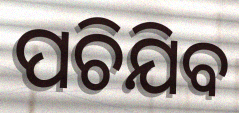
ପଚିଯିବ